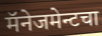
मॅनेजमेन्टचा